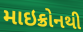
માઇક્રોનથી